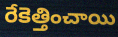
రేకెత్తించాయి